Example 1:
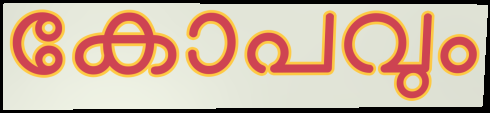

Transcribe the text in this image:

കോപവും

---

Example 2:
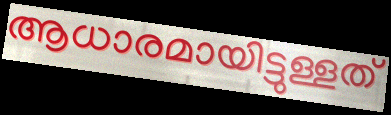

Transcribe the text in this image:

ആധാരമായിട്ടുള്ളത്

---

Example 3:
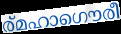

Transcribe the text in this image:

ര്മഹാഗൌരീ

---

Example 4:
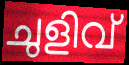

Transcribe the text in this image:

ചുളിവ്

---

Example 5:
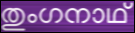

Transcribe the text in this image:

തുംഗനാഥ്